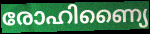
രോഹിണ്യൈ